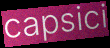
capsici